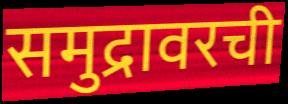
समुद्रावरची